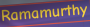
Ramamurthy